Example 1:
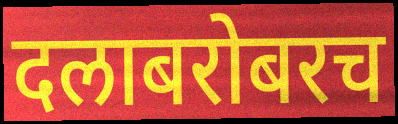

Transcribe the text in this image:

दलाबरोबरच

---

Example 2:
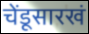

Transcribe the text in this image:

चेंडूसारखं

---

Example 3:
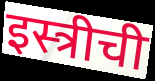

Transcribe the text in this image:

इस्त्रीची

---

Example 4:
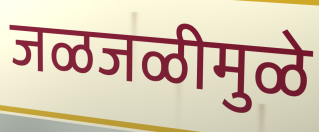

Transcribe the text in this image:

जळजळीमुळे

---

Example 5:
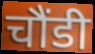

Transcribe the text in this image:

चौंडी